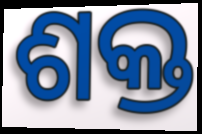
ଶକ୍ତ